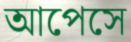
আপেসে